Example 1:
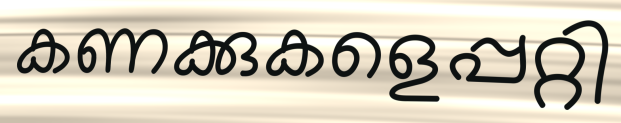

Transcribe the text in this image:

കണക്കുകളെപ്പറ്റി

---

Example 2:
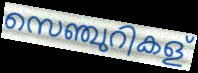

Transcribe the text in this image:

സെഞ്ചുറികള്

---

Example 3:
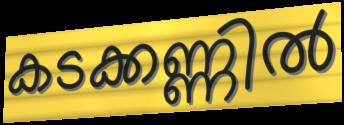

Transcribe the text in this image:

കടക്കണ്ണിൽ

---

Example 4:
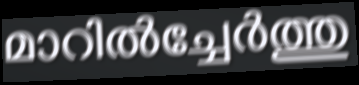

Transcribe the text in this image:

മാറിൽച്ചേർത്തു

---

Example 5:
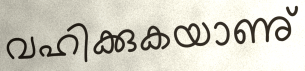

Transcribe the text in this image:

വഹിക്കുകയാണു്